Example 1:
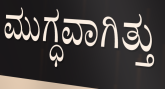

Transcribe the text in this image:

ಮುಗ್ಧವಾಗಿತ್ತು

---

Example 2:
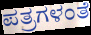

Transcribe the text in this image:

ಪತ್ರಗಳಂತೆ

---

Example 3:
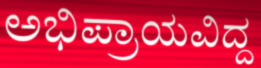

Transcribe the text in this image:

ಅಭಿಪ್ರಾಯವಿದ್ದ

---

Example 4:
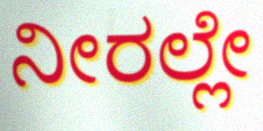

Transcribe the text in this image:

ನೀರಲ್ಲೇ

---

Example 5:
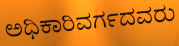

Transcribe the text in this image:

ಅಧಿಕಾರಿವರ್ಗದವರು